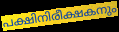
പക്ഷിനിരീക്ഷകനും